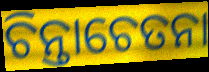
ଚିନ୍ତାଚେତନା